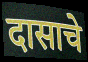
दासाचे